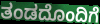
ತಂಡದೊಂದಿಗೆ